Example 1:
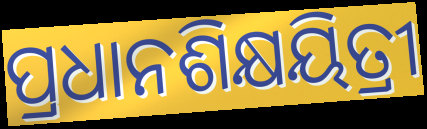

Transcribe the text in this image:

ପ୍ରଧାନଶିକ୍ଷୟିତ୍ରୀ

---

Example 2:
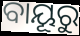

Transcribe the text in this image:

ବାୟୂରୁ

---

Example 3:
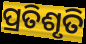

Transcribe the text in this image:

ପ୍ରତିଶୃତି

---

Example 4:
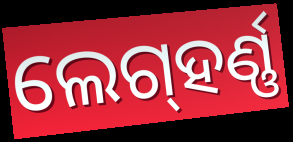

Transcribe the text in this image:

ଲେଗ୍‌ହର୍ଣ୍ଣ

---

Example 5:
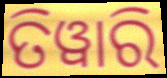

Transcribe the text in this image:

ତିୱାରି